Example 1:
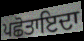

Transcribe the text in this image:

ਪਛੋਤਾਇਦਾ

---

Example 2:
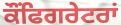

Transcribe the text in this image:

ਕੌਂਫਿਗਰੇਟਰਾਂ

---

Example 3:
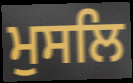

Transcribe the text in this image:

ਮੁਸਲਿ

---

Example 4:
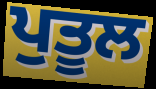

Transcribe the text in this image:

ਪੁਤੂਲ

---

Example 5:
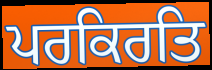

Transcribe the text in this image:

ਪਰਕਿਰਤਿ